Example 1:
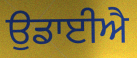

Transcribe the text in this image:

ਉਡਾਈਐ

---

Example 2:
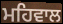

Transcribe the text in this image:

ਮਹਿਵਾਲ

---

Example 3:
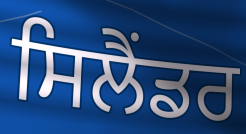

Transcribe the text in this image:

ਸਿਲੈਂਡਰ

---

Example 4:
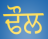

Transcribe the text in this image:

ਢੌਲ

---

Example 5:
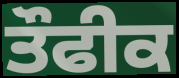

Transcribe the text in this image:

ਤੌਫੀਕ